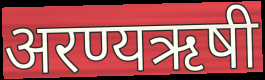
अरण्यऋषी